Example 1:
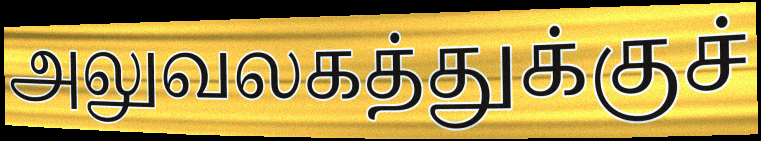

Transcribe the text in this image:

அலுவலகத்துக்குச்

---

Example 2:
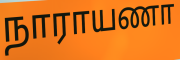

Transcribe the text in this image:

நாராயணா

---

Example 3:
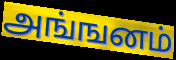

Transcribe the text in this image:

அங்ஙனம்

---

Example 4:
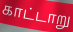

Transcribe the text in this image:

காட்டாறு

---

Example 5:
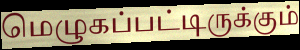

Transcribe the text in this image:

மெழுகப்பட்டிருக்கும்